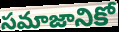
సమాజానికో